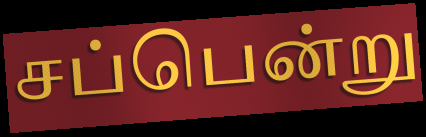
சப்பென்று